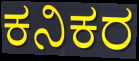
ಕನಿಕರ